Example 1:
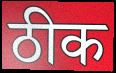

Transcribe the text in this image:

ठीक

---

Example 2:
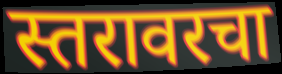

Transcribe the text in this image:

स्तरावरचा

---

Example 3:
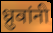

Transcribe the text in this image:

ध्रुवांनी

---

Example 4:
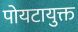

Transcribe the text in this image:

पोयटायुक्त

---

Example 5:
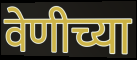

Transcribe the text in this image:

वेणीच्या